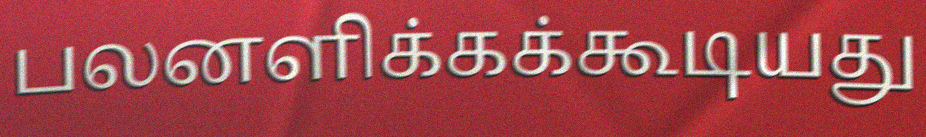
பலனளிக்கக்கூடியது